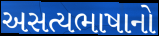
અસત્યભાષાનો